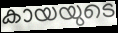
കായയുടെ